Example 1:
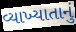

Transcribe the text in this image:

વ્યાખ્યાતાનું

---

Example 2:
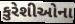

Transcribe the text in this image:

કુરેશીઓના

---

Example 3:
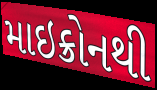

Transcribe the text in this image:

માઇક્રોનથી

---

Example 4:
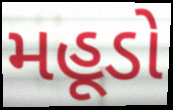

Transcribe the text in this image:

મહૂડો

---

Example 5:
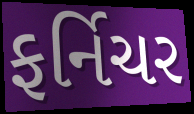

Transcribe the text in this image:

ફર્નિચર